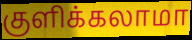
குளிக்கலாமா